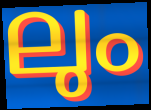
ലും